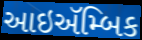
આઇઍમ્બિક